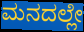
ಮನದಲ್ಲೇ